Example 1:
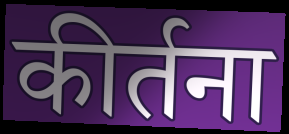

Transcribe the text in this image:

कीर्तना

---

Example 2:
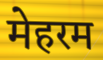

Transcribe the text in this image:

मेहरम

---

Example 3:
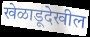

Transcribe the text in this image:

खेळाडूदेखील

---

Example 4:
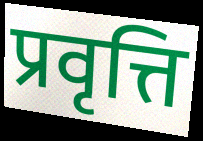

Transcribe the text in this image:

प्रवृत्ति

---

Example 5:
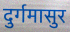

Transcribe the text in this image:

दुर्गमासुर